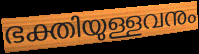
ഭക്തിയുള്ളവനും